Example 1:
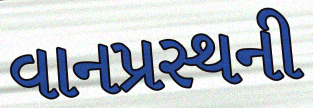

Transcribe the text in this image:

વાનપ્રસ્થની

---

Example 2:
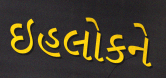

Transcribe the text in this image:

ઇહલોકને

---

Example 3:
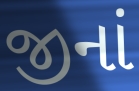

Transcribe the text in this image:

જીનાં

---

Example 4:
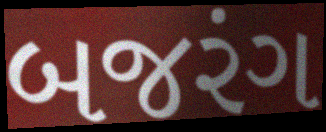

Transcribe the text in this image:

બજરંગ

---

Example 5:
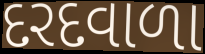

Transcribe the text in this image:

દરદવાળા